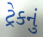
ટ્રેકનું